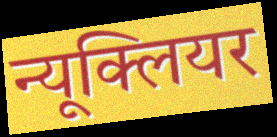
न्यूक्लियर